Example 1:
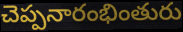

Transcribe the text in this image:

చెప్పనారంభింతురు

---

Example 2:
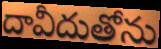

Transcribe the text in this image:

దావీదుతోను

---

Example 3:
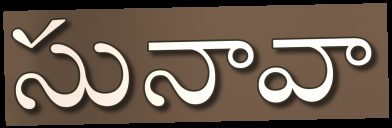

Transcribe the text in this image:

సునావా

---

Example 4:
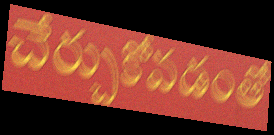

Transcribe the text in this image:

చేర్చుకోవడంతో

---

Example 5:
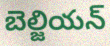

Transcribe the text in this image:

బెల్జియన్